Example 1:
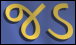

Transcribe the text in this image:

જડ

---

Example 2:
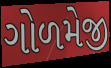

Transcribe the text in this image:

ગોળમેજી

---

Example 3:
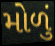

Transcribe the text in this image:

મોળું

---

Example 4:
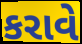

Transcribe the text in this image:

કરાવે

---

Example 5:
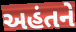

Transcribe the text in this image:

અહંતને